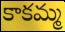
కాకమ్మ